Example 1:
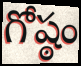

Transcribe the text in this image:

గోష్ఠం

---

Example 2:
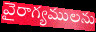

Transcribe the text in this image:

వైరాగ్యములను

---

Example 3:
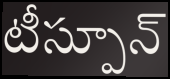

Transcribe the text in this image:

టీస్పూన్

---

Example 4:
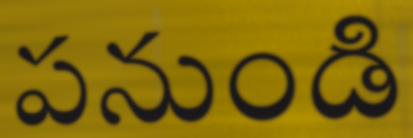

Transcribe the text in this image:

పనుండి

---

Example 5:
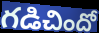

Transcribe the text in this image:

గడిచిందో